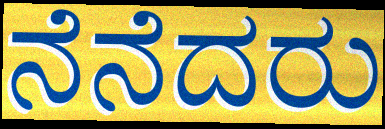
ನೆನೆದರು